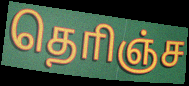
தெரிஞ்ச